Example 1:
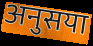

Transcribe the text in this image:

अनुसया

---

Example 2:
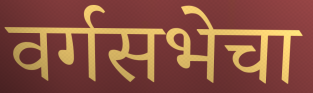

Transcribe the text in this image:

वर्गसभेचा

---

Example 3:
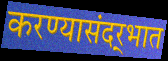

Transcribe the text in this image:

करण्यासंदर्भात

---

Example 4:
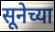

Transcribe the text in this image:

सूनेच्या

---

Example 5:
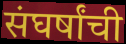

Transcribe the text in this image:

संघर्षांची